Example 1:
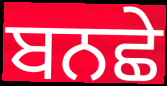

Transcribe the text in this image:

ਬਨਛੇ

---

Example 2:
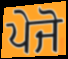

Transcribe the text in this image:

ਪੇਜੋ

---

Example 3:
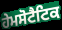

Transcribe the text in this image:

ਹੇਮਸੋਟੈਟਿਕ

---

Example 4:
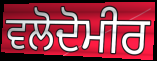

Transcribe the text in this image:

ਵਲੋਦੋਮੀਰ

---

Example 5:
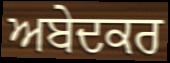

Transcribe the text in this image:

ਅਬੇਦਕਰ